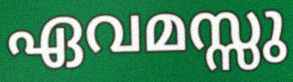
ഏവമസ്സു